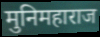
मुनिमहाराज